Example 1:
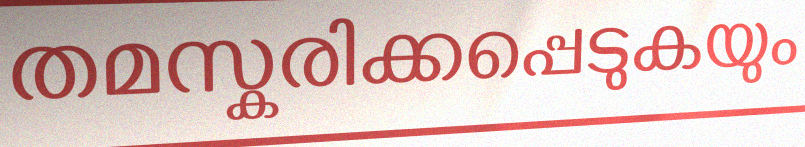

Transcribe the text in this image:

തമസ്കരിക്കപ്പെടുകയും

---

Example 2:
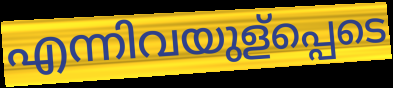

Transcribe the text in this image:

എന്നിവയുള്പ്പെടെ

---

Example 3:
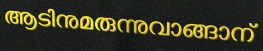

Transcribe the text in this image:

ആടിനുമരുന്നുവാങ്ങാന്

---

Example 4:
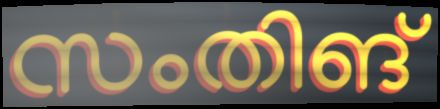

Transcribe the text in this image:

സംതിങ്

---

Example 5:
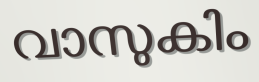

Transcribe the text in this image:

വാസുകിം